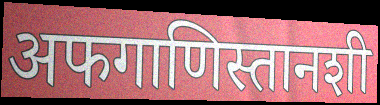
अफगाणिस्तानशी